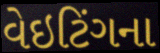
વેઇટિંગના